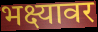
भक्ष्यावर